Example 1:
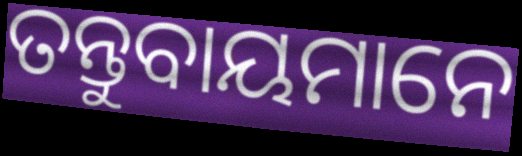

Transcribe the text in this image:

ତନ୍ତୁବାୟମାନେ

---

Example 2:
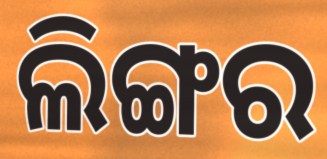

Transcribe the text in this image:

ଲିଙ୍ଗର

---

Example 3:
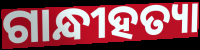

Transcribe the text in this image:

ଗାନ୍ଧୀହତ୍ୟା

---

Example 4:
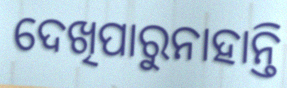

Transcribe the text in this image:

ଦେଖିପାରୁନାହାନ୍ତି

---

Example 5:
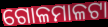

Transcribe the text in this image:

ଗୋଳମାଳଟା